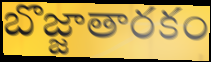
బొజ్జాతారకం